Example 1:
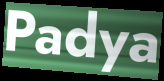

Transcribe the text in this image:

Padya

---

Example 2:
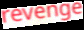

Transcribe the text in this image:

revenge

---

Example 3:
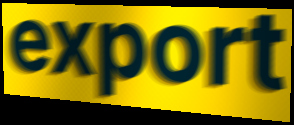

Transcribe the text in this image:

export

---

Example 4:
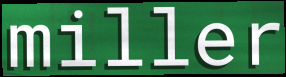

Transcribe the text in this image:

miller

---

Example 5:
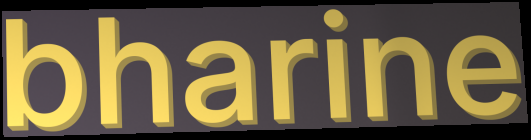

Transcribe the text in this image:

bharine